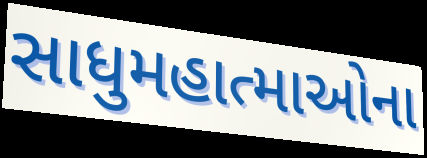
સાધુમહાત્માઓના